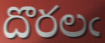
దొరలఁ